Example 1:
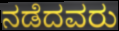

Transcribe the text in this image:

ನಡೆದವರು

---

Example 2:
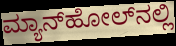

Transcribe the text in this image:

ಮ್ಯಾನ್‌ಹೋಲ್‌ನಲ್ಲಿ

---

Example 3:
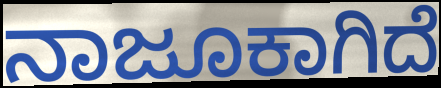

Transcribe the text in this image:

ನಾಜೂಕಾಗಿದೆ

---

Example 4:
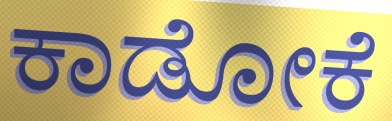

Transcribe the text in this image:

ಕಾಡೋಕೆ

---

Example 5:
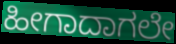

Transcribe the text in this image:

ಹೀಗಾದಾಗಲೇ